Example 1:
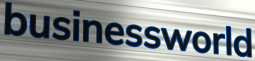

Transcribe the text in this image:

businessworld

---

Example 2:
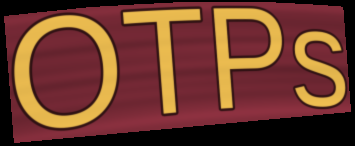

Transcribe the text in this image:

OTPs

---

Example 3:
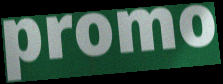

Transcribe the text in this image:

promo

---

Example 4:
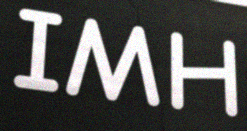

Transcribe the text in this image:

IMH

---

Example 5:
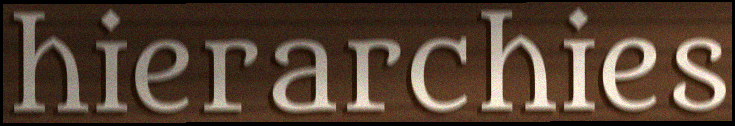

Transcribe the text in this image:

hierarchies